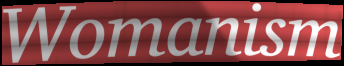
Womanism